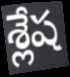
శ్లేష